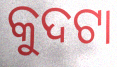
କୁଦଟା